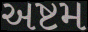
અષ્ટમ